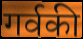
गर्वकी